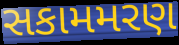
સકામમરણ